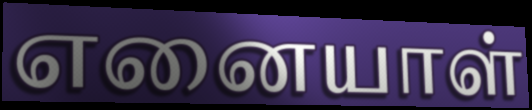
எனையாள்